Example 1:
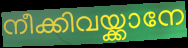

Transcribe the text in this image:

നീക്കിവയ്ക്കാനേ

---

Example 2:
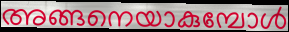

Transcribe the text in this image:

അങ്ങനെയാകുമ്പോൾ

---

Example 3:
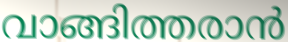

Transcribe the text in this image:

വാങ്ങിത്തരാൻ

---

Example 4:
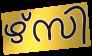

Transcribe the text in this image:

ഴ്സി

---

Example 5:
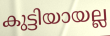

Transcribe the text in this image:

കുട്ടിയായല്ല